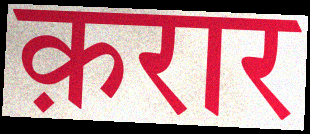
क़रार